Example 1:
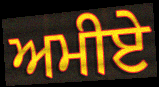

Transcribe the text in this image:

ਅਮੀਏ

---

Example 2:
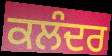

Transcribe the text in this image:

ਕਲੰਦਰ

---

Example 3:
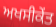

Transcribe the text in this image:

ਅਖਸੀਕੇਂਤ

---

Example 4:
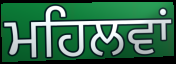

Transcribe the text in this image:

ਮਹਿਲਵਾਂ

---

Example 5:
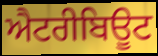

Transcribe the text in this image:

ਐਟਰੀਬਿਊਟ